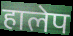
हालेप